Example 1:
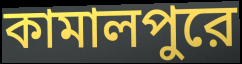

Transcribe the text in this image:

কামালপুরে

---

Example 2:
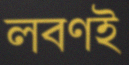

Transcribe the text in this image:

লবণই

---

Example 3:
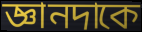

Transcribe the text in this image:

জ্ঞানদাকে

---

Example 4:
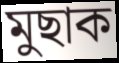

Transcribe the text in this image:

মুছাক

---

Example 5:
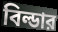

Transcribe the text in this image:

বিল্ডার